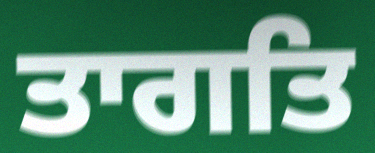
ਤਾਗਤਿ